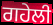
ਗਹੇਲੀ